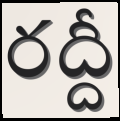
రద్దీ